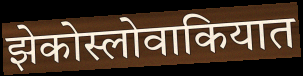
झेकोस्लोवाकियात